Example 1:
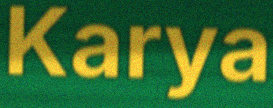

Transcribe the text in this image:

Karya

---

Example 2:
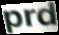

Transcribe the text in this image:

prd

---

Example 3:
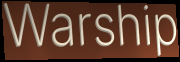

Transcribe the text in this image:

Warship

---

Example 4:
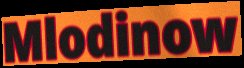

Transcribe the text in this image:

Mlodinow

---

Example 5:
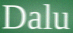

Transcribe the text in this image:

Dalu